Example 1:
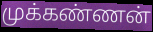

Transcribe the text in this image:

முக்கண்ணன்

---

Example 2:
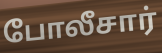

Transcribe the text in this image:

போலீசார்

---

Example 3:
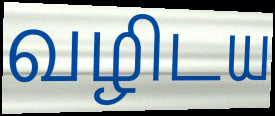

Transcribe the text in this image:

வழிடய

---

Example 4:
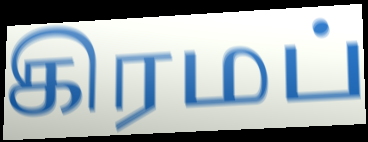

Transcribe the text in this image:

கிரமப்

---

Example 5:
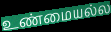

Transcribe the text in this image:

உண்மையல்ல